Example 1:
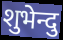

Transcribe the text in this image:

शुभेन्दु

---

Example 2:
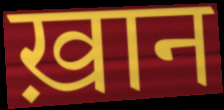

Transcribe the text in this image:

ख़ान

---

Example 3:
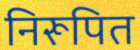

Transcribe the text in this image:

निरूपित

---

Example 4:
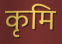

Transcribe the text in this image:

कृमि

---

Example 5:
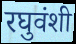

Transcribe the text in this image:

रघुवंशी